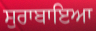
ਸੁਰਾਬਾਇਆ